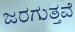
ಜರಗುತ್ತವೆ